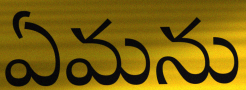
ఏమను